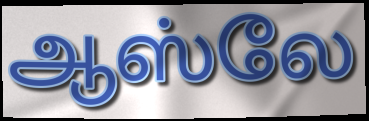
ஆஸ்லே